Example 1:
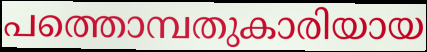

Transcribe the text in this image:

പത്തൊമ്പതുകാരിയായ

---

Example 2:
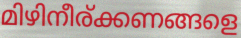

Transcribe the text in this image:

മിഴിനീര്ക്കണങ്ങളെ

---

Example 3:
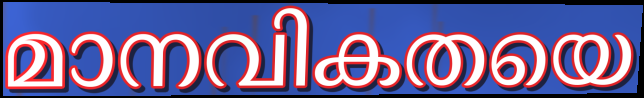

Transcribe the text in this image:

മാനവികതയെ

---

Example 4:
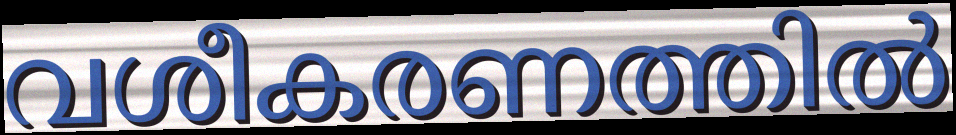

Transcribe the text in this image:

വശീകരണത്തിൽ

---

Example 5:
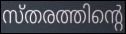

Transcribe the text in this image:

സ്തരത്തിന്റെ